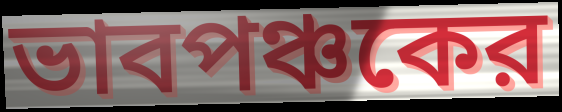
ভাবপঞ্চকের